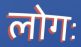
लोगः